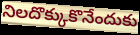
నిలదొక్కుకొనేందుకు